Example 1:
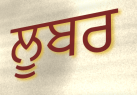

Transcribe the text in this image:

ਲੂਬਰ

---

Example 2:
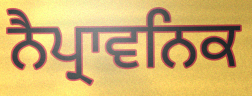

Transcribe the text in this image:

ਨੈਪ੍ਰਾਵਨਿਕ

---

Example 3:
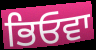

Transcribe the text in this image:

ਭਿਓਵਾ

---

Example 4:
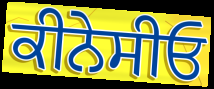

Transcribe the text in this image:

ਕੀਨੇਸੀਓ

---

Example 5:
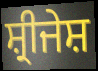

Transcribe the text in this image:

ਸ਼੍ਰੀਜੇਸ਼